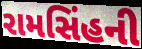
રામસિંહની